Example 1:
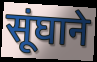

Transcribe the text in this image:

सूंघाने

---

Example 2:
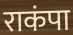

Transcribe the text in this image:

राकंपा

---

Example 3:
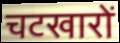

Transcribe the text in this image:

चटखारों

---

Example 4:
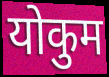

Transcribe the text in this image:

योकुम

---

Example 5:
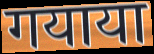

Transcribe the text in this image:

गयाया